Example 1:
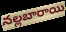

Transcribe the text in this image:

నల్లబారాయి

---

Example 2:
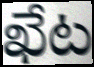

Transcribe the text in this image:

ఖేట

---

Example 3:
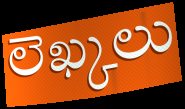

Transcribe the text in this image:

లెఖ్కలు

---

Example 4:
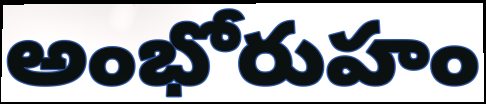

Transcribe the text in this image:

అంభోరుహం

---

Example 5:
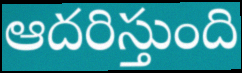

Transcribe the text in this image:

ఆదరిస్తుంది